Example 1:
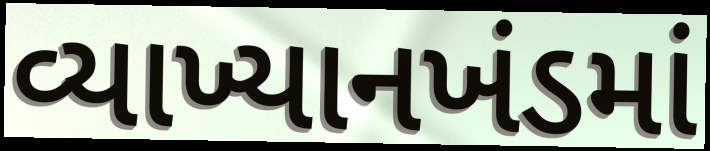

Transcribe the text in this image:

વ્યાખ્યાનખંડમાં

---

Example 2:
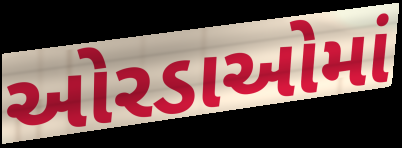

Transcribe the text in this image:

ઓરડાઓમાં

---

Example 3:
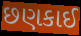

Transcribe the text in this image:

છણકાઈ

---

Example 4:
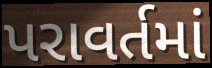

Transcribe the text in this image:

પરાવર્તમાં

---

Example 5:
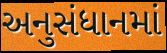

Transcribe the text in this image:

અનુસંધાનમાં